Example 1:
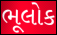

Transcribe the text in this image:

ભૂલોક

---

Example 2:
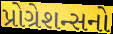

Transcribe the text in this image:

પ્રોગ્રેશન્સનો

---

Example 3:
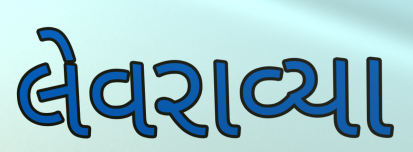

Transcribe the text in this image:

લેવરાવ્યા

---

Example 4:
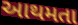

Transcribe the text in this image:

આથમતા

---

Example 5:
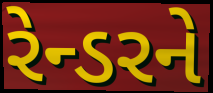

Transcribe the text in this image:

રેન્ડરને